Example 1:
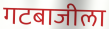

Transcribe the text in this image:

गटबाजीला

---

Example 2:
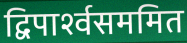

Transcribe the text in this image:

द्विपार्श्वसममित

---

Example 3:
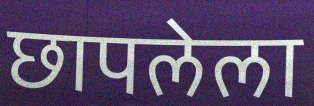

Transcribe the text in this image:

छापलेला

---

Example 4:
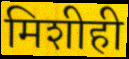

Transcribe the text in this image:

मिशीही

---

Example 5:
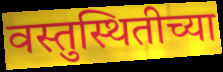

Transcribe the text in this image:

वस्तुस्थितीच्या